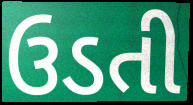
ઉડતી